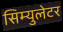
सिम्युलेटर